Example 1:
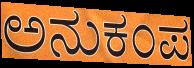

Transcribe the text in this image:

ಅನುಕಂಪ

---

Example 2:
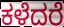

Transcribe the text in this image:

ಕಳೆದರೆ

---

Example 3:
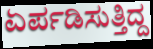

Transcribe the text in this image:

ಏರ್ಪಡಿಸುತ್ತಿದ್ದ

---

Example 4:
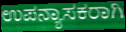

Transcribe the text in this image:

ಉಪನ್ಯಾಸಕರಾಗಿ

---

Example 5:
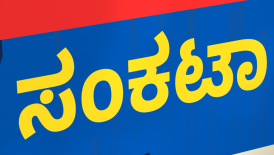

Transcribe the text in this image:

ಸಂಕಟಾ